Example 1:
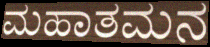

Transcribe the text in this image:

ಮಹಾತಮನ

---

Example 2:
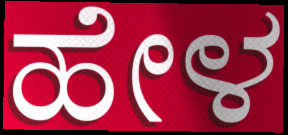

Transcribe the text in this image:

ಹೇಳ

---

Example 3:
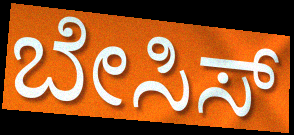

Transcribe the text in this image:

ಬೇಸಿಸ್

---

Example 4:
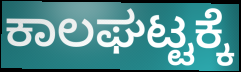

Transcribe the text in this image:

ಕಾಲಘಟ್ಟಕ್ಕೆ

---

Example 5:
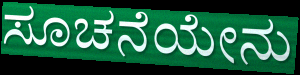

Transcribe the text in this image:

ಸೂಚನೆಯೇನು